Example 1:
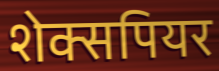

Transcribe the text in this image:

शेक्सपियर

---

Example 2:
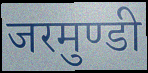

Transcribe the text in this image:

जरमुण्डी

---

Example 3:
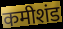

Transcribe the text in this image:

कमीशंड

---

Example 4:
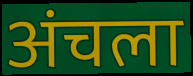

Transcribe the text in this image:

अंचला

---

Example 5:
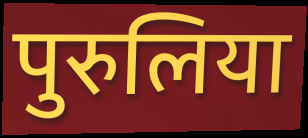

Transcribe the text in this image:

पुरुलिया